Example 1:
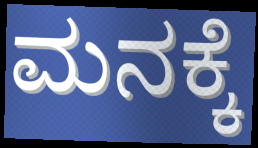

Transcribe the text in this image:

ಮನಕ್ಕೆ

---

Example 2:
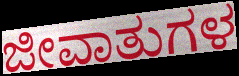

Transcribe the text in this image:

ಜೀವಾತುಗಳ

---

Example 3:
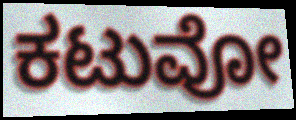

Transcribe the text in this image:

ಕಟುವೋ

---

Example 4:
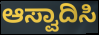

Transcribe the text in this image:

ಆಸ್ವಾದಿಸಿ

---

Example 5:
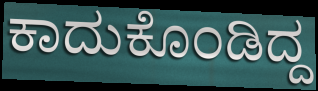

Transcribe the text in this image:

ಕಾದುಕೊಂಡಿದ್ದ